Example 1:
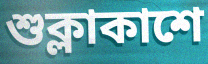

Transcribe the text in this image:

শুক্লাকাশে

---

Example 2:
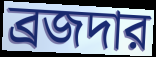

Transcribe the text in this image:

ব্রজদার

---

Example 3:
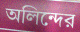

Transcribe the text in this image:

অলিন্দের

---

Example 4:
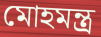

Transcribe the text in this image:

মোহমন্ত্র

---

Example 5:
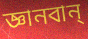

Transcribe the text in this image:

জ্ঞানবান্